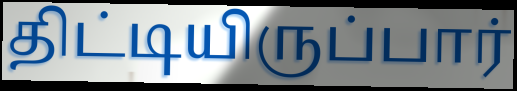
திட்டியிருப்பார்